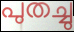
പുതച്ചു